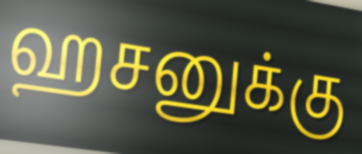
ஹசனுக்கு